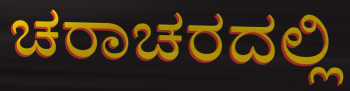
ಚರಾಚರದಲ್ಲಿ